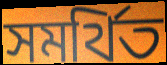
সমৰ্থিত